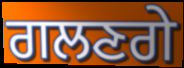
ਗਲਣਗੇ